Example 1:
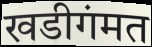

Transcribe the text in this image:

खडीगंमत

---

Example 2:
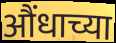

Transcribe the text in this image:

औंधाच्या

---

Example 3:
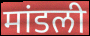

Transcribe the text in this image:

मांडली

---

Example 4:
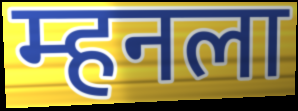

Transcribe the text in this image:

म्हनला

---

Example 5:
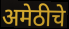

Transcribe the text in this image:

अमेठीचे